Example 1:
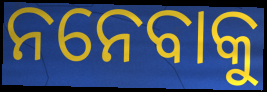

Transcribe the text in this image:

ନନେବାକୁ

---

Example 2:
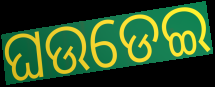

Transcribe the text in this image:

ଘଉଡେଇ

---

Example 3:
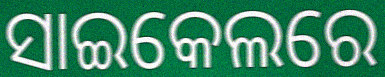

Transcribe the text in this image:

ସାଇକେଲରେ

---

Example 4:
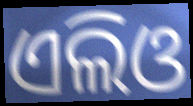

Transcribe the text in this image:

ଏଲିଓ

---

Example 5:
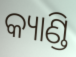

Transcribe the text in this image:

କ୍ୟାଣ୍ଡି